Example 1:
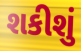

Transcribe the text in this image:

શકીશું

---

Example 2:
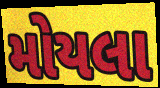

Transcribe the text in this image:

મોયલા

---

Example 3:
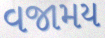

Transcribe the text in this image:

વજામય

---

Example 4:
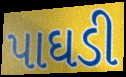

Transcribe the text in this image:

પાઘડી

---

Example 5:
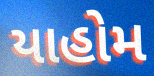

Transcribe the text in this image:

યાહોમ